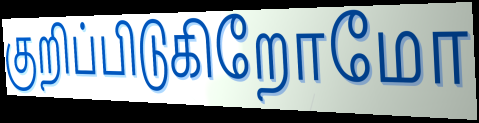
குறிப்பிடுகிறோமோ